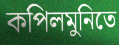
কপিলমুনিতে